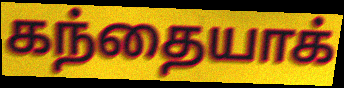
கந்தையாக்